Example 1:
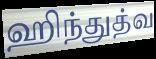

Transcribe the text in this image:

ஹிந்துத்வ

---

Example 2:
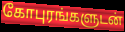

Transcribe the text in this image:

கோபுரங்களுடன்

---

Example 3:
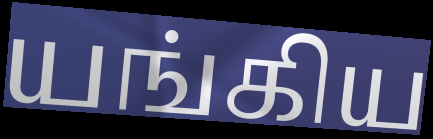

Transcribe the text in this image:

யங்கிய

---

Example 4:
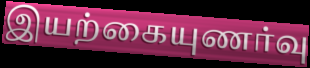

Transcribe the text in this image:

இயற்கையுணர்வு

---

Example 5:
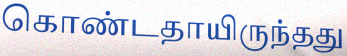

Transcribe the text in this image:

கொண்டதாயிருந்தது